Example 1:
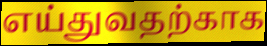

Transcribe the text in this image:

எய்துவதற்காக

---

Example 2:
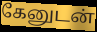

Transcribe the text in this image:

கேனுடன்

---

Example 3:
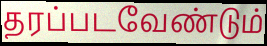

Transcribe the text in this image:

தரப்படவேண்டும்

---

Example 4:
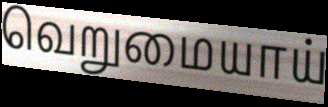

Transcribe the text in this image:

வெறுமையாய்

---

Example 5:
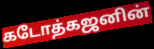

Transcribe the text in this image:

கடோத்கஜனின்